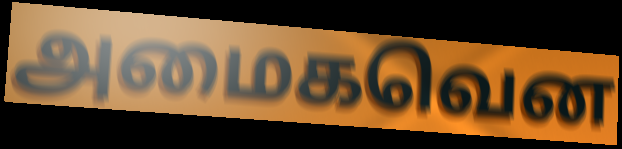
அமைகவென